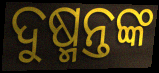
ଦୁଷ୍ମନ୍ତଙ୍କ